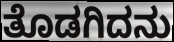
ತೊಡಗಿದನು